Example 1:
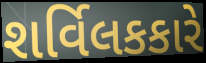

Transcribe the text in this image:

શર્વિલકકારે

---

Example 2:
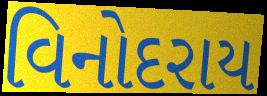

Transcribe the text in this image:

વિનોદરાય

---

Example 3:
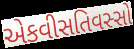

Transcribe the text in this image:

એકવીસતિવસ્સો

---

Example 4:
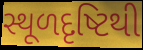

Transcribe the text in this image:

સ્થૂળદૃષ્ટિથી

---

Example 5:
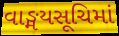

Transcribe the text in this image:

વાઙ્મયસૂચિમાં